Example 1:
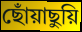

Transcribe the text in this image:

ছোঁয়াছুয়ি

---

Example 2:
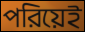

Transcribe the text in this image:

পরিয়েই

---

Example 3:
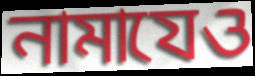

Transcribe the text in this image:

নামাযেও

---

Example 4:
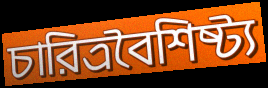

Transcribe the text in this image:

চারিত্রবৈশিষ্ট্য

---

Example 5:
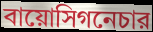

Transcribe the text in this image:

বায়োসিগনেচার